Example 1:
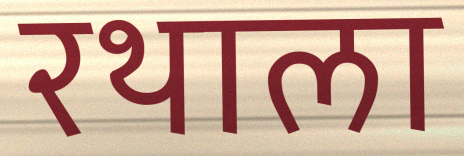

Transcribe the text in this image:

रथाला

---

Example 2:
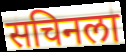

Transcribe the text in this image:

सचिनला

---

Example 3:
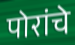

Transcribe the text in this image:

पोरांचे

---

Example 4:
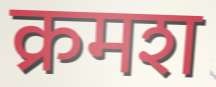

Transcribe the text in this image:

क्रमश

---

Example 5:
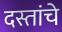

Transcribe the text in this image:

दस्तांचे